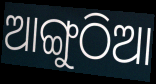
ଆଙ୍ଗୁଠିଆ